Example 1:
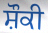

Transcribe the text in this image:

ਸ਼ੌਕੀ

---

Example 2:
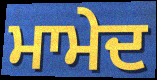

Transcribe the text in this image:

ਮਾਮੇਦ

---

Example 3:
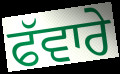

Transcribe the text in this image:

ਫੱਵਾਰੇ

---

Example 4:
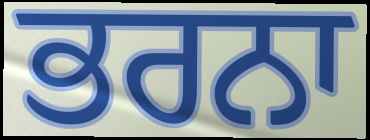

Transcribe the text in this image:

ਭਰਨਾ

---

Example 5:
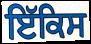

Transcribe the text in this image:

ਇੱਕਿਸ